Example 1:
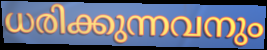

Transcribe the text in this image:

ധരിക്കുന്നവനും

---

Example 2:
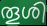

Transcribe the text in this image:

തൂശി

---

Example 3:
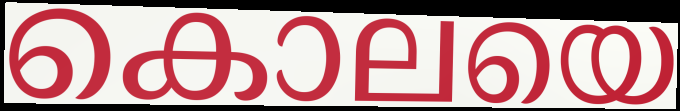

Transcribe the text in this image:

കൊലയെ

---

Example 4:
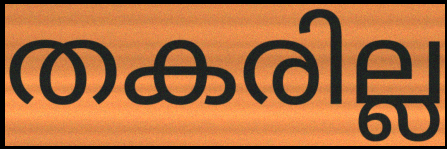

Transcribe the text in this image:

തകരില്ല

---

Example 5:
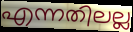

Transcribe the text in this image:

എന്നതിലല്ല